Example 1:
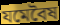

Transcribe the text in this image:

যমেবৈষ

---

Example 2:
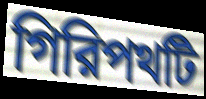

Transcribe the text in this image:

গিরিপথটি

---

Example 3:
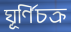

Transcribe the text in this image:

ঘূর্ণিচক্র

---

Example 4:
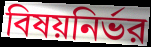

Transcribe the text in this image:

বিষয়নির্ভর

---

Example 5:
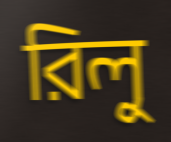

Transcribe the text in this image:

রিলু